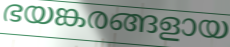
ഭയങ്കരങ്ങളായ